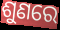
ଶୁଣରେ